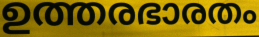
ഉത്തരഭാരതം